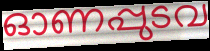
ഓണപ്പുടവ